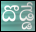
దొడ్డే